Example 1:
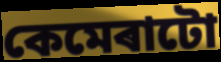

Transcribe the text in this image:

কেমেৰাটো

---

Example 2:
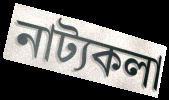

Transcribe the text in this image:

নাট্যকলা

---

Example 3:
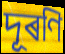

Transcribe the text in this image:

দূৰণি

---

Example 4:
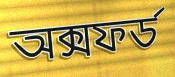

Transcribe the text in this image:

অক্সফৰ্ড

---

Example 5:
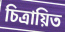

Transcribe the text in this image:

চিত্ৰায়িত